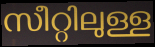
സീറ്റിലുള്ള